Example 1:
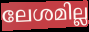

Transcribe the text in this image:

ലേശമില്ല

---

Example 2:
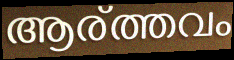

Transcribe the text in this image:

ആര്ത്തവം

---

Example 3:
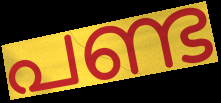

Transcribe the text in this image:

പണ്ട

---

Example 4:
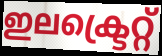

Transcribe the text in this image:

ഇലക്ട്രെറ്റ്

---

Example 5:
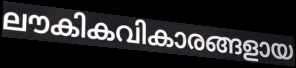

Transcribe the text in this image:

ലൗകികവികാരങ്ങളായ